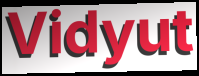
Vidyut